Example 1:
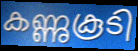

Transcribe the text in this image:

കണ്ണുകൂടി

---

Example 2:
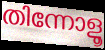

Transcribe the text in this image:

തിന്നോളൂ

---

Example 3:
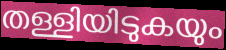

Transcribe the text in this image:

തള്ളിയിടുകയും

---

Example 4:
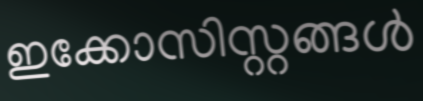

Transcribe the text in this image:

ഇക്കോസിസ്റ്റങ്ങൾ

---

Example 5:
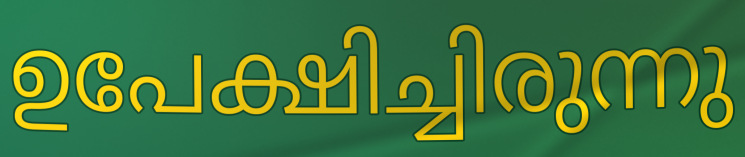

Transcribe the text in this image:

ഉപേക്ഷിച്ചിരുന്നു